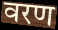
वरण